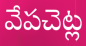
వేపచెట్ల